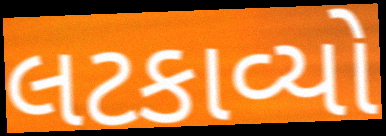
લટકાવ્યો